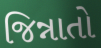
જિન્નાતો